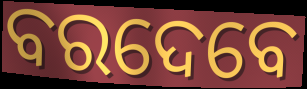
ବରଦେବେ